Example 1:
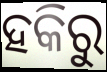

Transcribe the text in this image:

ହକିରୁ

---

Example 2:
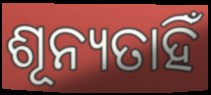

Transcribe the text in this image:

ଶୂନ୍ୟତାହିଁ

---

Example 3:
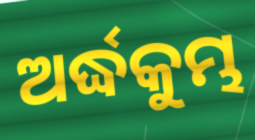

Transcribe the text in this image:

ଅର୍ଦ୍ଧକୁମ୍ଭ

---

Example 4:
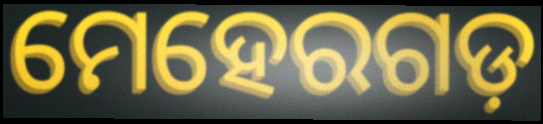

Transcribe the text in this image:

ମେହେରଗଡ଼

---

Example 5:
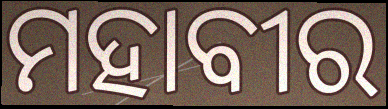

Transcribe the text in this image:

ମହାବୀର